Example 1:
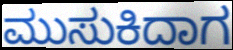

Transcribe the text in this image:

ಮುಸುಕಿದಾಗ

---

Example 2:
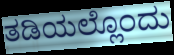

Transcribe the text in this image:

ತಡಿಯಲ್ಲೊಂದು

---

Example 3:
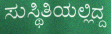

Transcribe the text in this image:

ಸುಸ್ಥಿತಿಯಲ್ಲಿದ್ದ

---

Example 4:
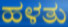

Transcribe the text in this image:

ಹಳತು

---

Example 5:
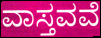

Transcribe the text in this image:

ವಾಸ್ತವವೆ